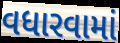
વધારવામાં